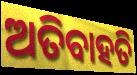
ଅତିବାହତି